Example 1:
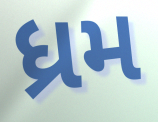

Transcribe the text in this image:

ધ્રમ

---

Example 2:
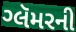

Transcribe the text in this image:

ગ્લૅમરની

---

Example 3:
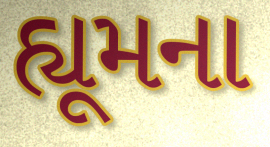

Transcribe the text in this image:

હ્યૂમના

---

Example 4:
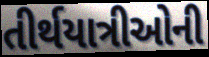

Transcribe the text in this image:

તીર્થયાત્રીઓની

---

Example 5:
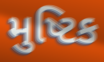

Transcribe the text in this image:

મુષ્ટિક